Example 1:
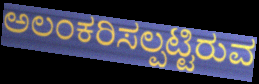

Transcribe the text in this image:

ಅಲಂಕರಿಸಲ್ಪಟ್ಟಿರುವ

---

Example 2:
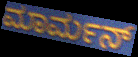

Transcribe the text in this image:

ಮಾರ್ಮನ್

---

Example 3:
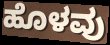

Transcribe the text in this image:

ಹೊಳವು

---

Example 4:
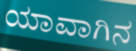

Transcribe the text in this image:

ಯಾವಾಗಿನ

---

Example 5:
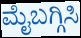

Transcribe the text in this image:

ಮೈಬಗ್ಗಿಸಿ